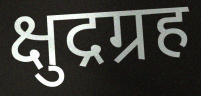
क्षुद्रग्रह